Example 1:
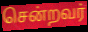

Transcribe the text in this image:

சென்றவர்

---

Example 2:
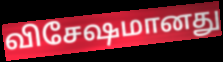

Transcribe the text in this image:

விசேஷமானது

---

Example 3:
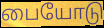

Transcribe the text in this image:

பையோடு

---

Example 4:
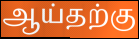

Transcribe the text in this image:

ஆய்தற்கு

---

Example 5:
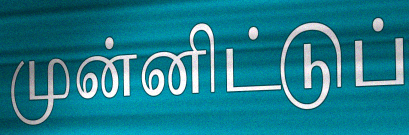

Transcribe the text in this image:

முன்னிட்டுப்